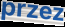
przez